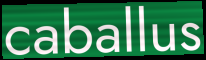
caballus